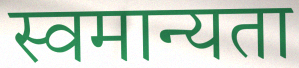
स्वमान्यता